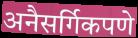
अनैसर्गिकपणे